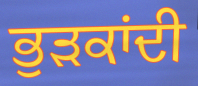
ਭੁੜਕਾਂਦੀ